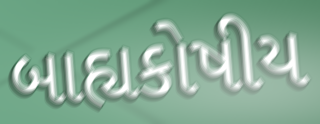
બાહ્યકોષીય